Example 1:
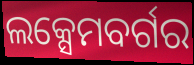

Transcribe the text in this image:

ଲକ୍ସେମବର୍ଗର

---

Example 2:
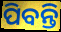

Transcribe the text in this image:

ପିବନ୍ତି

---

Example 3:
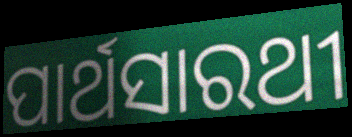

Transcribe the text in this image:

ପାର୍ଥସାରଥୀ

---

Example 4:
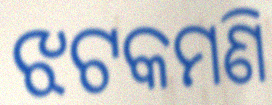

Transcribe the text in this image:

ଝଟକମଣି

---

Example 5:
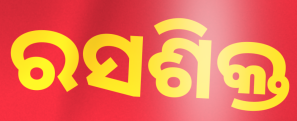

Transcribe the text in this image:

ରସଶିକ୍ତ